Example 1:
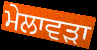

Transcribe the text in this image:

ਮੇਲਾਵੜਾ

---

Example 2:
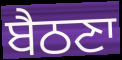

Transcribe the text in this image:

ਬੈਠਣਾ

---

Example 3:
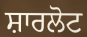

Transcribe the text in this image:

ਸ਼ਾਰਲੋਟ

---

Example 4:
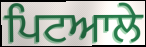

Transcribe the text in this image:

ਪਿਟਆਲੇ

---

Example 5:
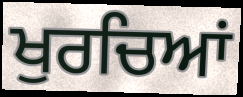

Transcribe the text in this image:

ਖੁਰਚਿਆਂ